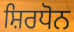
ਸ਼ਿਰਧੋਨ